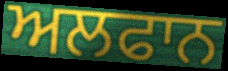
ਅਲਫਾਨ